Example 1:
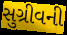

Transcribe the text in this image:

સુગ્રીવની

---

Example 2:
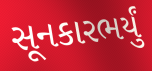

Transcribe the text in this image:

સૂનકારભર્યું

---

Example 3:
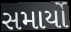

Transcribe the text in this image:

સમાર્યો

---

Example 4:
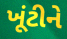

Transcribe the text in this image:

ખૂંટીને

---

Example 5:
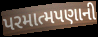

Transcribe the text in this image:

પરમાત્મપણાની